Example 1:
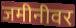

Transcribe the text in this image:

जमीनीवर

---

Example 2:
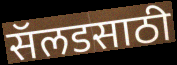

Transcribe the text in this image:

सॅलडसाठी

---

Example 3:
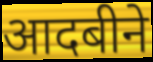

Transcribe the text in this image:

आदबीने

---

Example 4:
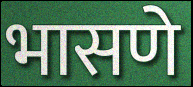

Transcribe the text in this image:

भासणे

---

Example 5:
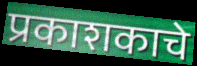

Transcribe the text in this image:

प्रकाशकाचे